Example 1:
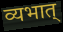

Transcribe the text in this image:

व्यभात्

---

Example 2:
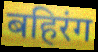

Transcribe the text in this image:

बहिरंग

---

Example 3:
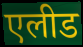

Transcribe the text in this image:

एलीड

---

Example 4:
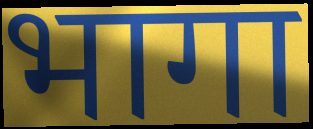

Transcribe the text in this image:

भागा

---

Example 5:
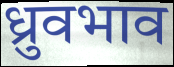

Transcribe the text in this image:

ध्रुवभाव